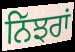
ਨਿੱਝਰਾਂ